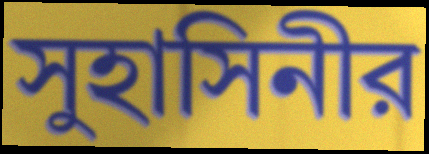
সুহাসিনীর